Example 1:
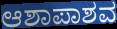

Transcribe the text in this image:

ಆಶಾಪಾಶವ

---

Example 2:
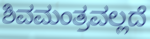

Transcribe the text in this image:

ಶಿವಮಂತ್ರವಲ್ಲದೆ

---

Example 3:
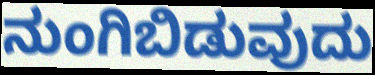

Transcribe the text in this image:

ನುಂಗಿಬಿಡುವುದು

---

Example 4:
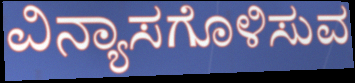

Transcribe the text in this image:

ವಿನ್ಯಾಸಗೊಳಿಸುವ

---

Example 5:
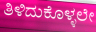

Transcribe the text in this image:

ತಿಳಿದುಕೊಳ್ಳಲೇ